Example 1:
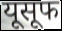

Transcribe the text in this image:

यूसूफ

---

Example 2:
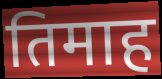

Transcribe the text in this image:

तिमाह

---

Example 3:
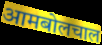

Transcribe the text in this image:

आमबोलचाल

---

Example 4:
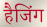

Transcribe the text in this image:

हैजिंग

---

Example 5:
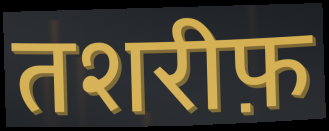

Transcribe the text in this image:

तशरीफ़